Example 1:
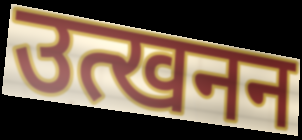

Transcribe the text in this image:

उत्खनन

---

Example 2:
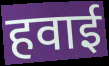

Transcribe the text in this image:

हवाई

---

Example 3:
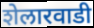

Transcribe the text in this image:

शेलारवाडी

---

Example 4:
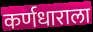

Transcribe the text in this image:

कर्णधाराला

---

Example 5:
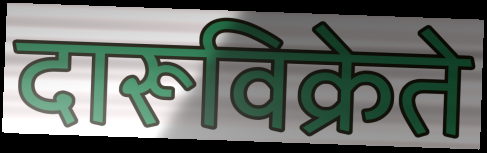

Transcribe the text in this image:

दारूविक्रेते